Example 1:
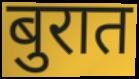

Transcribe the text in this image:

बुरात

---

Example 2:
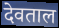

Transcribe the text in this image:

देवताल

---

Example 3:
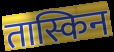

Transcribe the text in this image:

तास्किन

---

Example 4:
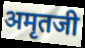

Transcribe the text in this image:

अमृतजी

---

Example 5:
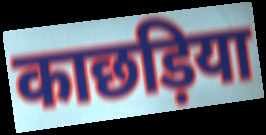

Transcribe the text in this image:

काछड़िया